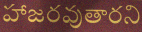
హాజరవుతారని